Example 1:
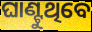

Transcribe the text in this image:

ଘାଣ୍ଟୁଥିବେ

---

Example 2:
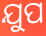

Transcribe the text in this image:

ଯୁପ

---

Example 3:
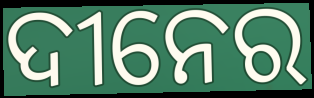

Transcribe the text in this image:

ଦୀନେର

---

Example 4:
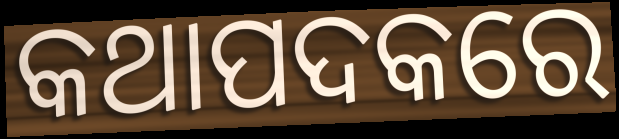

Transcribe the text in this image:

କଥାପଦକରେ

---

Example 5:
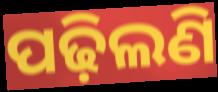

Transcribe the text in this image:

ପଢ଼ିଲଣି